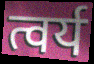
त्वर्य